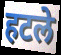
हटले